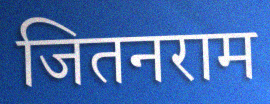
जितनराम